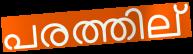
പരത്തില്